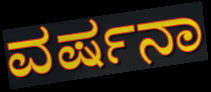
ವರ್ಷನಾ